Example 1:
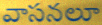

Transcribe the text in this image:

వాసనలూ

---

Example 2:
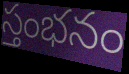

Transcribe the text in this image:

స్తంభనం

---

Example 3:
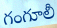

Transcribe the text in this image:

గంగూలీ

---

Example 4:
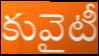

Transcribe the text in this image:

కువైటీ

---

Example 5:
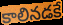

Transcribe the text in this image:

కాలినడకే